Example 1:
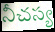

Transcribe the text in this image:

నీచస్య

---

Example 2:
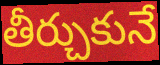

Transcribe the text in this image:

తీర్చుకునే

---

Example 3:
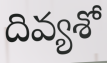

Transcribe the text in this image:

దివ్యశో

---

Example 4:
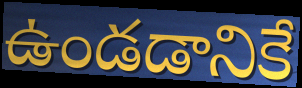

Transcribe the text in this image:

ఉండడానికే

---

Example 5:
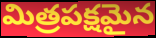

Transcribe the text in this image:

మిత్రపక్షమైన